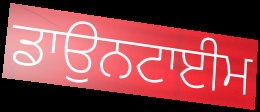
ਡਾਉਨਟਾਈਮ